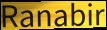
Ranabir